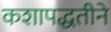
कशापद्धतीने